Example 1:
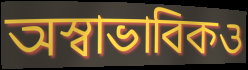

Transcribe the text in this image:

অস্বাভাবিকও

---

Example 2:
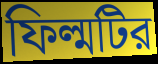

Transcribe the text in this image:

ফিল্মটির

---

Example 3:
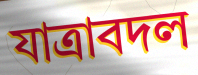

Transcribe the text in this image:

যাত্রাবদল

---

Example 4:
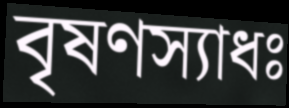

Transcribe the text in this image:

বৃষণস্যাধঃ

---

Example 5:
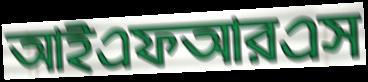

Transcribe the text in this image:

আইএফআরএস